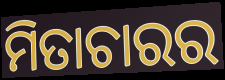
ମିତାଚାରର